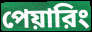
পেয়ারিং